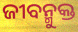
ଜୀବନ୍ମୁକ୍ତ